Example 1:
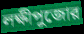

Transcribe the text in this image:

লক্ষীপুজোর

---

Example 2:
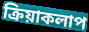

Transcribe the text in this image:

ক্রিয়াকলাপ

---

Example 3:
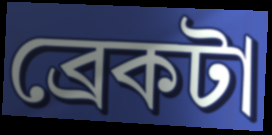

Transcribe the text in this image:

ব্রেকটা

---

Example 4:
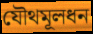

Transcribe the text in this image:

যৌথমূলধন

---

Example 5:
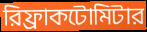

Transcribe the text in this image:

রিফ্রাকটোমিটার